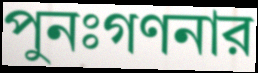
পুনঃগণনার